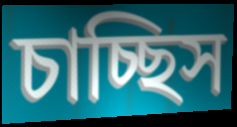
চাচ্ছিস